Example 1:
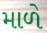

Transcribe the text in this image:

માળે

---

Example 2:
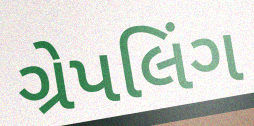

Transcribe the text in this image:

ગ્રેપલિંગ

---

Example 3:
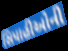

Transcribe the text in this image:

સિપાહીઓની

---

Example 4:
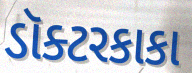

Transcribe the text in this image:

ડૉક્ટરકાકા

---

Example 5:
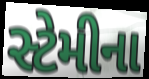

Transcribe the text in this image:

સ્ટેમીના